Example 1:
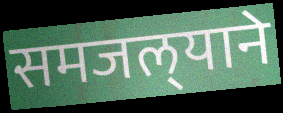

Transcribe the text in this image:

समजल्याने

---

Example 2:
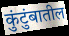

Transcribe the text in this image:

कुंटुंबातील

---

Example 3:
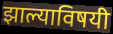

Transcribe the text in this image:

झाल्याविषयी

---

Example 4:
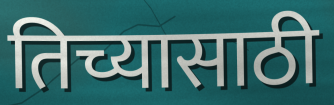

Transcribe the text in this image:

तिच्यासाठी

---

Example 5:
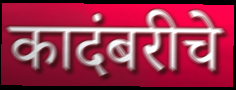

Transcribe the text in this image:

कादंबरीचे